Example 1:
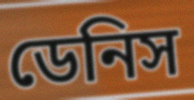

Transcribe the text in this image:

ডেনিস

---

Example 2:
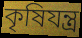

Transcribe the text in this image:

কৃষিযন্ত্র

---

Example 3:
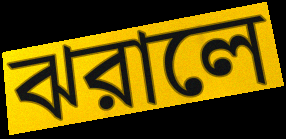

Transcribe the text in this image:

ঝরালে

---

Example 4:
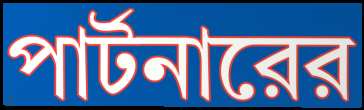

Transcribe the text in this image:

পার্টনারের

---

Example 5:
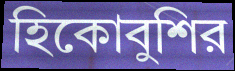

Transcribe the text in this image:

হিকোবুশির